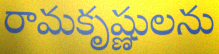
రామకృష్ణులను